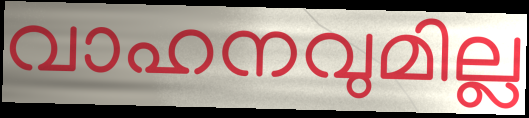
വാഹനവുമില്ല